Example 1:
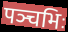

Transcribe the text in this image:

पञ्चभिः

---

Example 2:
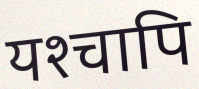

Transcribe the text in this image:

यश्चापि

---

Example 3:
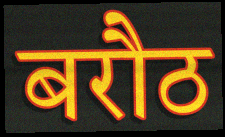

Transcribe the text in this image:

बरौठ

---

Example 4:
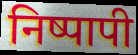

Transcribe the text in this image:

निष्पापी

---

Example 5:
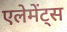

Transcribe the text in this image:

एलेमेंट्स